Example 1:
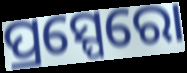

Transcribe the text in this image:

ପ୍ରସ୍ପେରୋ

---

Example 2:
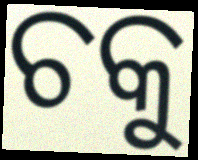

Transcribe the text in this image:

ଚକୁ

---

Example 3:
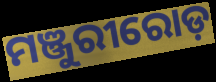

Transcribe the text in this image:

ମଞ୍ଜୁରୀରୋଡ଼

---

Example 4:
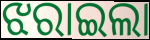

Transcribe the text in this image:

ଝରାଇଲା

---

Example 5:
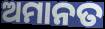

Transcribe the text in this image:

ଅମାନତ